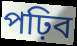
পঢ়িব